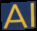
AI